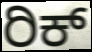
ರಿಕ್